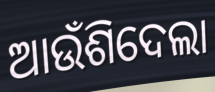
ଆଉଁଶିଦେଲା